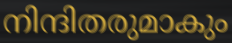
നിന്ദിതരുമാകും